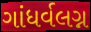
ગાંધર્વલગ્ન